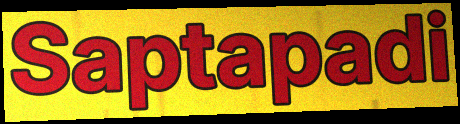
Saptapadi